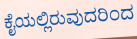
ಕೈಯಲ್ಲಿರುವುದರಿಂದ